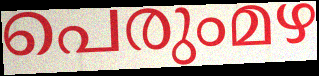
പെരുംമഴ